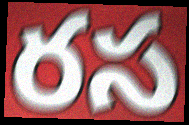
రస